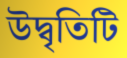
উদ্বৃতিটি